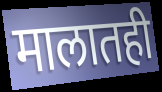
मालातही